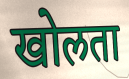
खोलता